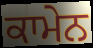
ਕਾਮੇਨ